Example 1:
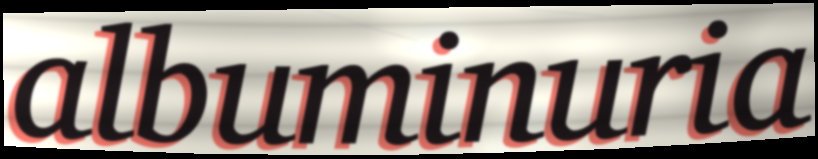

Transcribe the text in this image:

albuminuria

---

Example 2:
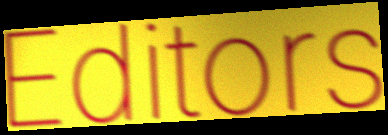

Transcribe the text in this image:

Editors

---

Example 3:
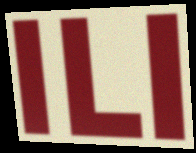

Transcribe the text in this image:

ILI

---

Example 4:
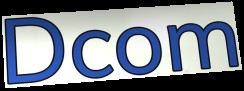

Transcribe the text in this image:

Dcom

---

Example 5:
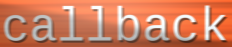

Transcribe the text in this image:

callback